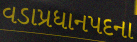
વડાપ્રધાનપદના